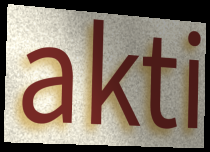
akti